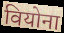
वियोना